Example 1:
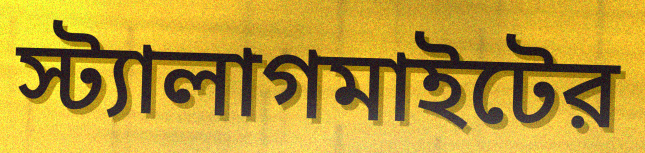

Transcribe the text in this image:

স্ট্যালাগমাইটের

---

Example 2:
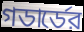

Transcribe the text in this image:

গডার্ডের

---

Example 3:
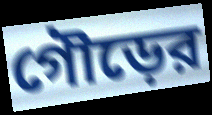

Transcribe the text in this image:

গৌড়ের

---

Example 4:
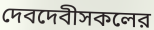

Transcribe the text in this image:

দেবদেবীসকলের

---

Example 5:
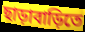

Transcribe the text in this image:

ছাড়াবাড়িতে